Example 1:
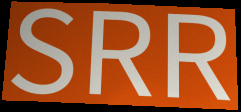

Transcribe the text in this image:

SRR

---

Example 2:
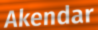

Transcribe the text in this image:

Akendar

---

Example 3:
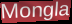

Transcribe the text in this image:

Mongla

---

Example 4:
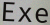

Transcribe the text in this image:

Exe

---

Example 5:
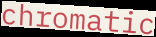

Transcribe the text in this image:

chromatic